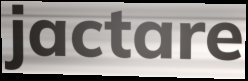
jactare